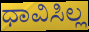
ಧಾವಿಸಿಲ್ಲ